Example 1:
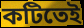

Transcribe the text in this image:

কটিতেই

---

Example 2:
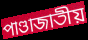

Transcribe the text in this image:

পাণ্ডাজাতীয়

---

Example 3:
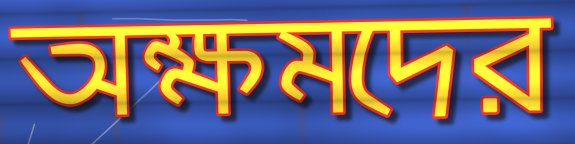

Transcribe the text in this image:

অক্ষমদের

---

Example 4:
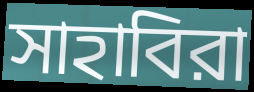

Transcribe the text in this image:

সাহাবিরা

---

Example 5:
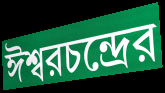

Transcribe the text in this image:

ঈশ্বরচন্দ্রের